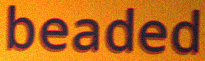
beaded